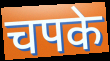
चपके